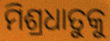
ମିଶ୍ରଧାତୁକୁ